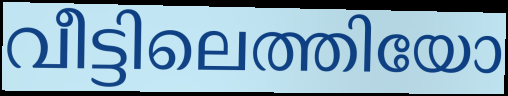
വീട്ടിലെത്തിയോ